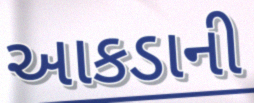
આકડાની